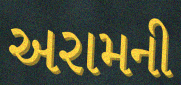
અરામની